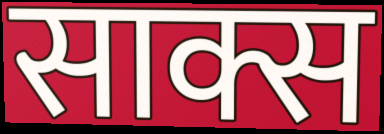
साक्स